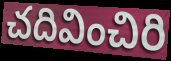
చదివించిరి